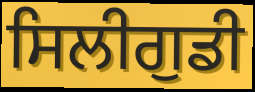
ਸਿਲੀਗੁਡੀ